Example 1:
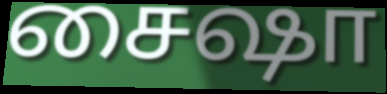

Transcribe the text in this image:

சைஷா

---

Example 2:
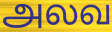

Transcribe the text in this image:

அலவ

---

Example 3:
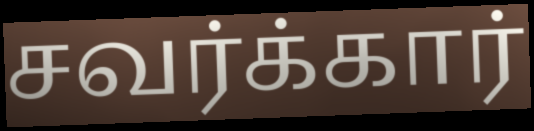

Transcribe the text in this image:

சவர்க்கார்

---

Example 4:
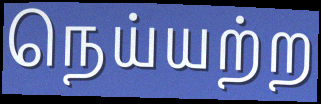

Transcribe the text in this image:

நெய்யற்ற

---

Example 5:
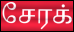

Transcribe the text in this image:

சேரக்